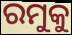
ରମୁକୁ